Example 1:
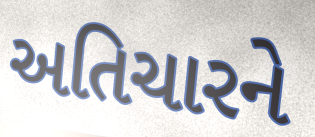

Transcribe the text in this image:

અતિચારને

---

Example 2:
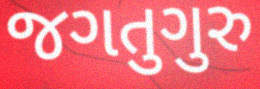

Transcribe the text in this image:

જગતુગુરુ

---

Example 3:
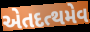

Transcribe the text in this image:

એતદત્થમેવ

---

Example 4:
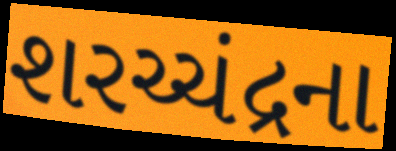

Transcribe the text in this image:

શરચ્ચંદ્રના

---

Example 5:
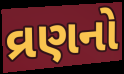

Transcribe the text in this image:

વ્રણનો